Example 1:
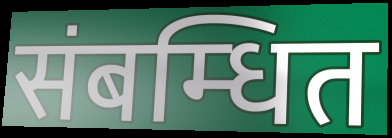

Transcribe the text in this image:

संबम्धित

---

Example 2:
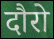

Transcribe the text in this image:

दौरो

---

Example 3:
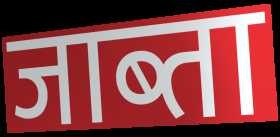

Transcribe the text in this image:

जाब्ता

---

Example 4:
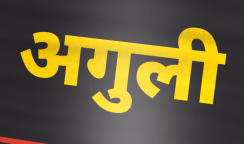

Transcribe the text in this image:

अगुली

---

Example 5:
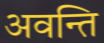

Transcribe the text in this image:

अवन्ति